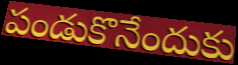
పండుకొనేందుకు